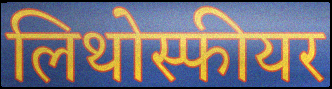
लिथोस्फीयर